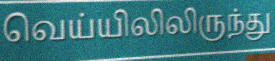
வெய்யிலிலிருந்து